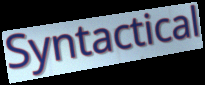
Syntactical